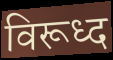
विरूध्द